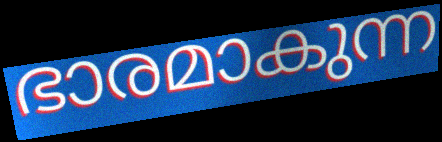
ഭാരമാകുന്ന